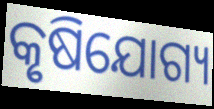
କୃଷିଯୋଗ୍ୟ